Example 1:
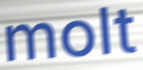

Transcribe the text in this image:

molt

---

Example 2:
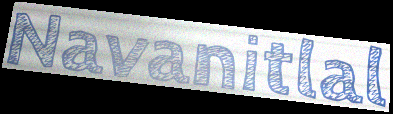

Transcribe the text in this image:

Navanitlal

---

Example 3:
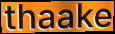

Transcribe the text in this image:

thaake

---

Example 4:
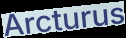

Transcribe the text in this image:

Arcturus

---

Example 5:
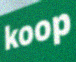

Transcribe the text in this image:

koop